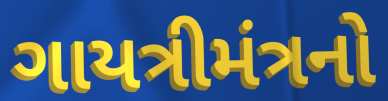
ગાયત્રીમંત્રનો